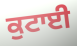
ਕੁਟਾਈ